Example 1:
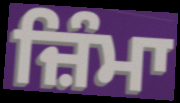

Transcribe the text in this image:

ਜ਼ਿੰਮਾ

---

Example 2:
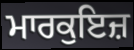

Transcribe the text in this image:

ਮਾਰਕੁਇਜ਼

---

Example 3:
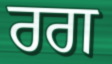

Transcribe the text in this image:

ਰਗ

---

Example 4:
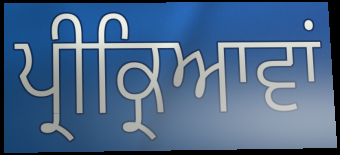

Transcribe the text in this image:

ਪ੍ਰੀਕ੍ਰਿਆਵਾਂ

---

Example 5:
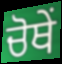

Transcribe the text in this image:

ਚੋਥੇਂ